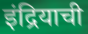
इंद्रियाची